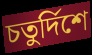
চতুৰ্দিশে